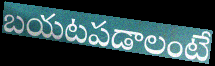
బయటపడాలంటే